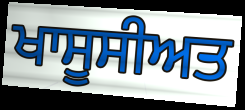
ਖਾਸੂਸੀਅਤ